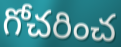
గోచరించ